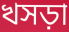
খসড়া